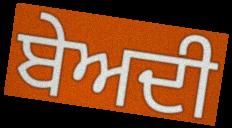
ਬੇਅਦੀ